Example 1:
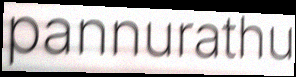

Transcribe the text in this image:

pannurathu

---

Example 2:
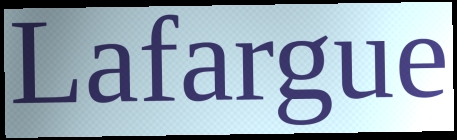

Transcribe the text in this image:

Lafargue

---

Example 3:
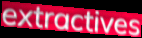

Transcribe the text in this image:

extractives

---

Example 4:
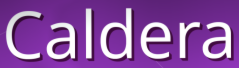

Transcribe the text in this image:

Caldera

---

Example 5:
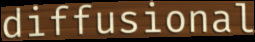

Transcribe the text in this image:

diffusional